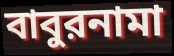
বাবুরনামা